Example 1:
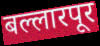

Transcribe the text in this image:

बल्लारपूर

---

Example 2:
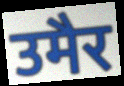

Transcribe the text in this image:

उमैर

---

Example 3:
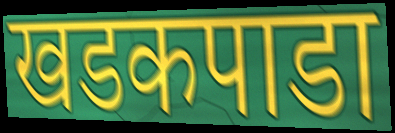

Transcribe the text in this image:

खडकपाडा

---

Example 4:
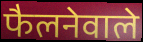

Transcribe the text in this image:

फैलनेवाले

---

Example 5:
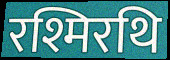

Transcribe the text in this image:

रश्मिरथि